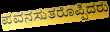
ಪವನಸುತರೊಪ್ಪಿದರು